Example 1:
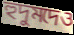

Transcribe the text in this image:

হুদুমদেও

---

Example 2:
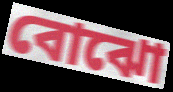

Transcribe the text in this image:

বোঝো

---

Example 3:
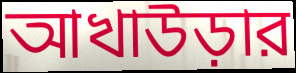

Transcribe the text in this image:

আখাউড়ার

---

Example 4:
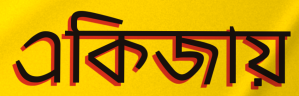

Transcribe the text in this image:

একিজায়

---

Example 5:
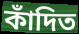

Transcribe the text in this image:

কাঁদিত